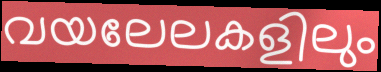
വയലേലകളിലും